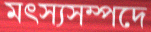
মৎস্যসম্পদে